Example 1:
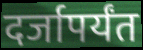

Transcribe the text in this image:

दर्जापर्यंत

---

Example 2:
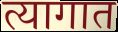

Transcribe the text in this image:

त्यागात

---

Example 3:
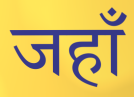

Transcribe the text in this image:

जहाँ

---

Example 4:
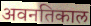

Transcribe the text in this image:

अवनतिकाल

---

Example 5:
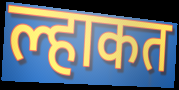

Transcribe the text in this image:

ल्हाकत